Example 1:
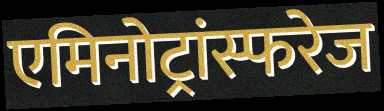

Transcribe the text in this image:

एमिनोट्रांस्फरेज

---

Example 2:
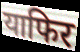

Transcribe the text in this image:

याफिर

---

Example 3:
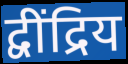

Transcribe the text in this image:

द्वींद्रिय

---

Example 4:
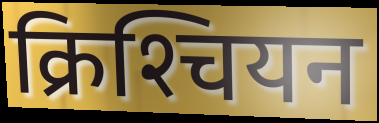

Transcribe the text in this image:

क्रिश्चियन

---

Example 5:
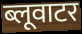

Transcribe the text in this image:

ब्लूवाटर